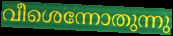
വീശെന്നോതുന്നു